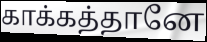
காக்கத்தானே